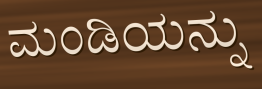
ಮಂಡಿಯನ್ನು